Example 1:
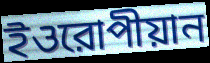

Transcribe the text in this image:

ইওরোপীয়ান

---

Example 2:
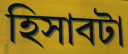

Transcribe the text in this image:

হিসাবটা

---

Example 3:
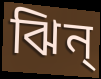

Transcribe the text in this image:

ঝিন্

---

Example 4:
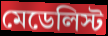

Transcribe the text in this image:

মেডেলিস্ট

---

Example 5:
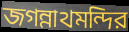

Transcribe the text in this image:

জগন্নাথমন্দির